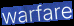
warfare